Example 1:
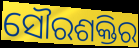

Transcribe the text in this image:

ସୌରଶକ୍ତିର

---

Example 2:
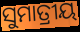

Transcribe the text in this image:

ସୁମାତ୍ରୀୟ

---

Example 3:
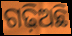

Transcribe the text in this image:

ଗଢ଼ିଅଛି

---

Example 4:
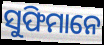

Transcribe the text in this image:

ସୁଫିମାନେ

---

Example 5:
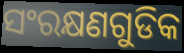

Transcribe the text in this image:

ସଂରକ୍ଷଣଗୁଡିକ